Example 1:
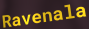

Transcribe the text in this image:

Ravenala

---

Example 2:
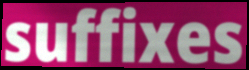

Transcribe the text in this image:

suffixes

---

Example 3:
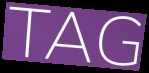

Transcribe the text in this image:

TAG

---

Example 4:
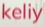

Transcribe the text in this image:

keliy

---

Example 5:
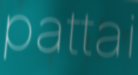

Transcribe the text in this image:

pattai